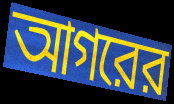
আগরের